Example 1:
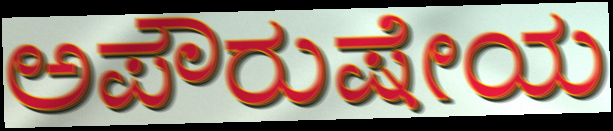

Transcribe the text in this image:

ಅಪೌರುಷೇಯ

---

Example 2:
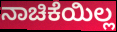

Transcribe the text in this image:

ನಾಚಿಕೆಯಿಲ್ಲ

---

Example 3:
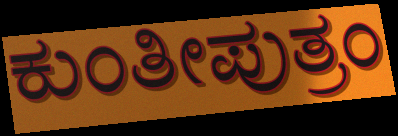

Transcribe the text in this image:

ಕುಂತೀಪುತ್ರಂ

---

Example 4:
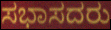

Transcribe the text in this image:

ಸಭಾಸದರು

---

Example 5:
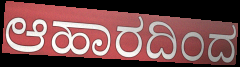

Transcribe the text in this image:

ಆಹಾರದಿಂದ